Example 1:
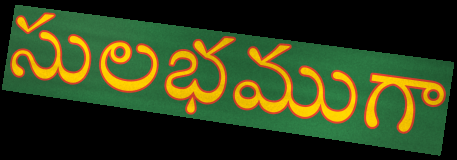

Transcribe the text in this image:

సులభముగా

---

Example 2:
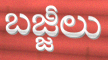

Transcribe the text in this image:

బజ్జీలు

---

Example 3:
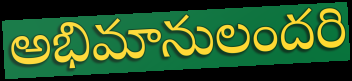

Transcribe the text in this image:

అభిమానులందరి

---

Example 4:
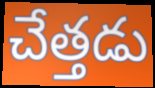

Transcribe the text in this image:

చేత్తడు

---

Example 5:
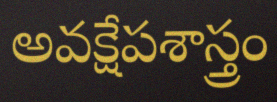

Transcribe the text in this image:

అవక్షేపశాస్త్రం